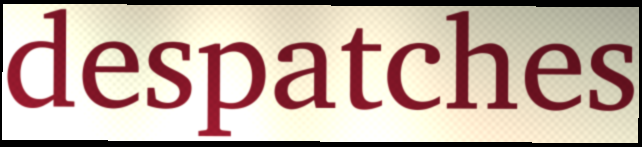
despatches